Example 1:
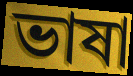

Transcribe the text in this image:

ভাষা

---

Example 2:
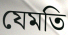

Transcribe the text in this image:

যেমতি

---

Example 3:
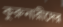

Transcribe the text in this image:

কুরুনারীদের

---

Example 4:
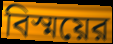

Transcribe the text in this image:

বিস্ময়ের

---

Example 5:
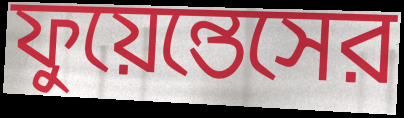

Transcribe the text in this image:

ফুয়েন্তেসের